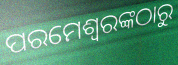
ପରମେଶ୍ଵରଙ୍କଠାରୁ